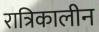
रात्रिकालीन